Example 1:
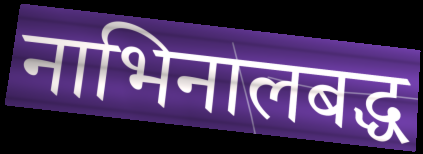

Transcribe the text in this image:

नाभिनालबद्ध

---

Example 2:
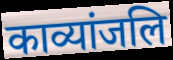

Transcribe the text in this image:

काव्यांजलि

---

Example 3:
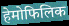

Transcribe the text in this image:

हेमोफिलिक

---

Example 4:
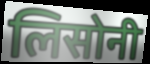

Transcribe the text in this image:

लिसोनी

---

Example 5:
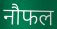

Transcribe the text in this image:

नौफल